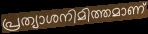
പ്രത്യാശനിമിത്തമാണ്